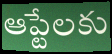
ఆప్టేలకు